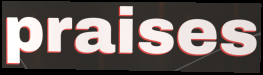
praises